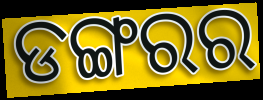
ଡଙ୍ଗରର